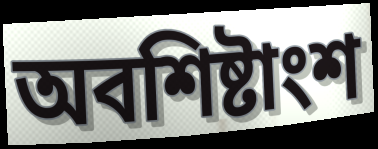
অবশিষ্টাংশ